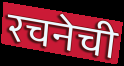
रचनेची